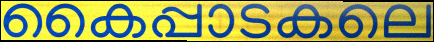
കൈപ്പാടകലെ